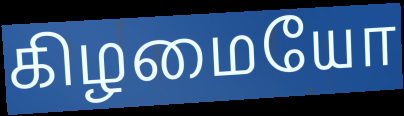
கிழமையோ